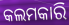
କଲମକାରି